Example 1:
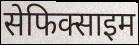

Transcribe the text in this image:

सेफिक्साइम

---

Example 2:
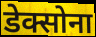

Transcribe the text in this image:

डेक्सोना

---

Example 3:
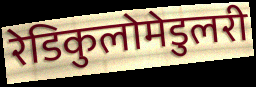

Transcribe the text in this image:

रेडिकुलोमेडुलरी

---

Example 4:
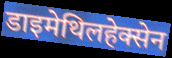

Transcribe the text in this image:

डाइमेथिलहेक्सेन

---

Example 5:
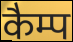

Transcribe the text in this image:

कैम्प